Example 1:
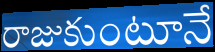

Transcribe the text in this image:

రాజుకుంటూనే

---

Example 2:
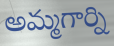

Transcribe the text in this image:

అమ్మగార్ని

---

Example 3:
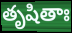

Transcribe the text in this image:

తృషితాః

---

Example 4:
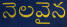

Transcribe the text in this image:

నెలవైన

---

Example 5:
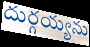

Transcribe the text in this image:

దుర్గయ్యను